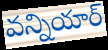
వన్నియార్